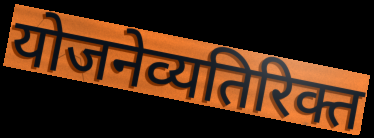
योजनेव्यतिरिक्त